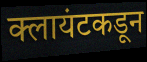
क्लायंटकडून